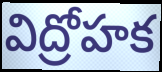
విద్రోహక